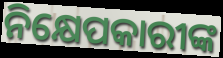
ନିକ୍ଷେପକାରୀଙ୍କ